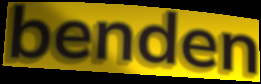
benden